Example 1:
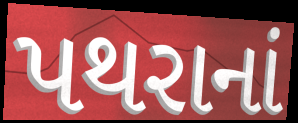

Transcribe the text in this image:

પથરાનાં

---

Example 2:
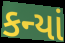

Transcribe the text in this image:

કન્યાં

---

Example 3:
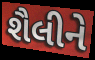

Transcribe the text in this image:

શૈલીને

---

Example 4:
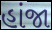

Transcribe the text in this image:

હાંજા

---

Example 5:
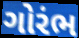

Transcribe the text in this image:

ગોરંભ